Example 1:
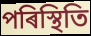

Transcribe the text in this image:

পৰিস্থিতি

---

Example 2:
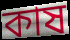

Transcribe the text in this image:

কাষ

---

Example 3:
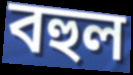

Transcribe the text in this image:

বহুল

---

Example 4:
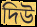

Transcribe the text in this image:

দিউ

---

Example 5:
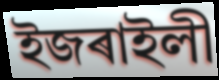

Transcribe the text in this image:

ইজৰাইলী